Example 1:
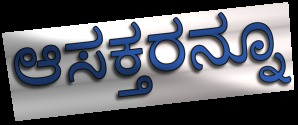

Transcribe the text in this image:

ಆಸಕ್ತರನ್ನೂ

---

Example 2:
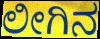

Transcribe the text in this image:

ಲೀಗಿನ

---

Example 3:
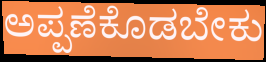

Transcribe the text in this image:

ಅಪ್ಪಣೆಕೊಡಬೇಕು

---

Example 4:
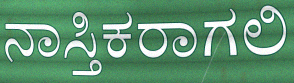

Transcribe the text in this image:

ನಾಸ್ತಿಕರಾಗಲಿ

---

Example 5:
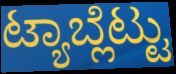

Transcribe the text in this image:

ಟ್ಯಾಬ್ಲೆಟ್ಟು